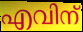
എവിന്